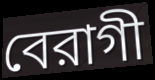
বেরাগী